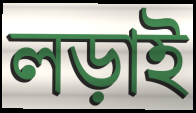
লড়াই